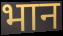
भान